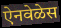
ऐनवेळेस